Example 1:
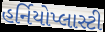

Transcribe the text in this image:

હર્નિયોપ્લાસ્ટી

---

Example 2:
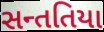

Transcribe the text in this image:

સન્તતિયા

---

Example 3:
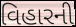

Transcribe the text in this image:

વિહારની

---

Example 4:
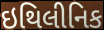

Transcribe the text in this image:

ઇથિલીનિક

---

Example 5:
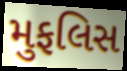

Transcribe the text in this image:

મુફલિસ